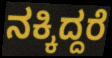
ನಕ್ಕಿದ್ದರೆ